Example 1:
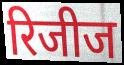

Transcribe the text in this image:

रिजीज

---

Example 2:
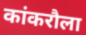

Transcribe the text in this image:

कांकरौला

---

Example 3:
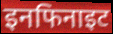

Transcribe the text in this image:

इनफिनाइट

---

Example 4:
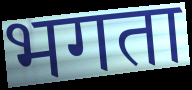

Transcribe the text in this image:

भगता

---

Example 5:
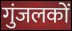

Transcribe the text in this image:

गुंजलकों